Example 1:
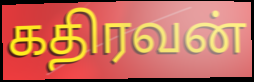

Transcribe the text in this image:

கதிரவன்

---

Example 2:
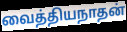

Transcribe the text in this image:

வைத்தியநாதன்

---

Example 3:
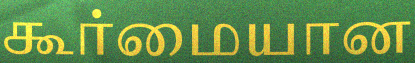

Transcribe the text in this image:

கூர்மையான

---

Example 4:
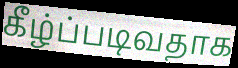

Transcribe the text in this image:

கீழ்ப்படிவதாக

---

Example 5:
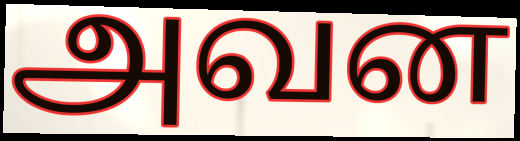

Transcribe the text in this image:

அவன